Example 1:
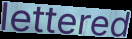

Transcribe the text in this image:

lettered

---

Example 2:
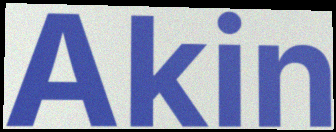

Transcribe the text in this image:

Akin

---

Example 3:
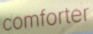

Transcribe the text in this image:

comforter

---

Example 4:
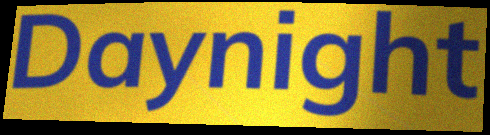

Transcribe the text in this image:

Daynight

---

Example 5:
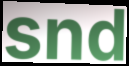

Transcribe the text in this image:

snd